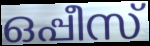
ഒപ്പീസ്